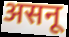
असनू